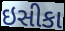
ઇસીકા